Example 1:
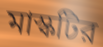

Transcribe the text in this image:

মাস্কটির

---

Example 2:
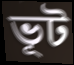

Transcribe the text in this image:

ভূট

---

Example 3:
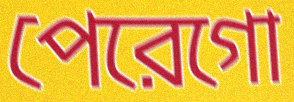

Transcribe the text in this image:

পেরেগো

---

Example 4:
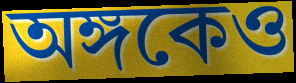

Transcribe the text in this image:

অঙ্গকেও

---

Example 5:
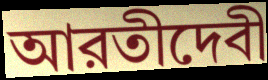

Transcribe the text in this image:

আরতীদেবী